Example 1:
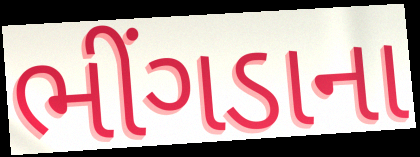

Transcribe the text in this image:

ભીંગડાના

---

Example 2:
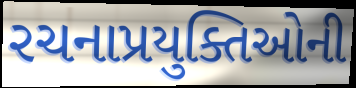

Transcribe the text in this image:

રચનાપ્રયુક્તિઓની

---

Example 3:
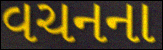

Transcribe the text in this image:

વચનના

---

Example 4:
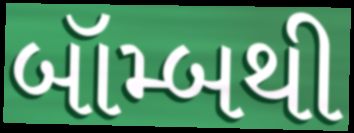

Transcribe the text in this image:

બૉમ્બથી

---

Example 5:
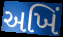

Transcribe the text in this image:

અખિં